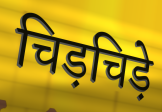
चिड़चिड़े